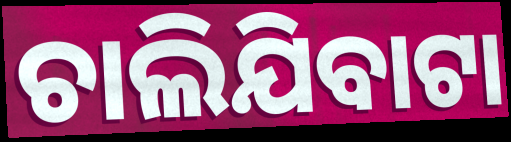
ଚାଲିଯିବାଟା